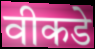
वीकडे